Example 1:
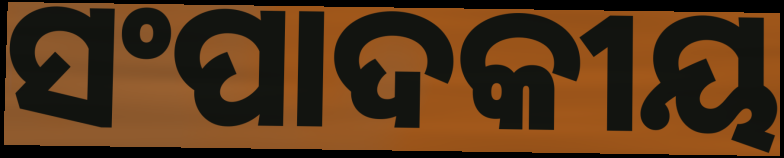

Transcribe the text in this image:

ସଂପାଦକୀୟ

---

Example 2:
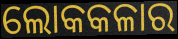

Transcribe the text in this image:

ଲୋକକଳାର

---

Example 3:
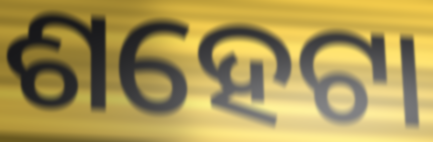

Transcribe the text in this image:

ଶହେଟା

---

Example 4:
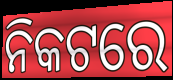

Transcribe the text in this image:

ନିକଟରେ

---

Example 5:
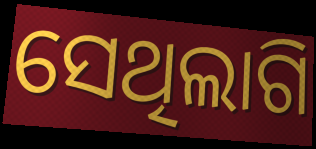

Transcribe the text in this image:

ସେଥିଲାଗି